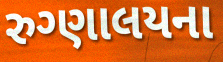
રુગ્ણાલયના